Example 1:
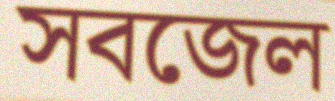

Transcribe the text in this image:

সবজেল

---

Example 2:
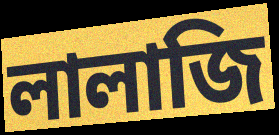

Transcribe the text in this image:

লালাজি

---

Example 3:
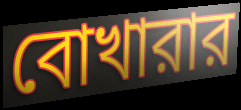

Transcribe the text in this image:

বোখারার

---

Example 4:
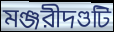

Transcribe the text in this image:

মঞ্জরীদণ্ডটি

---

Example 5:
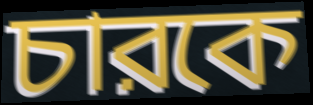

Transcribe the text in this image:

চারকে